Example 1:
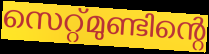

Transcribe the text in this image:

സെറ്റ്മുണ്ടിന്റെ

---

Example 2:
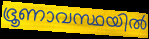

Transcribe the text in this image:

ഭ്രൂണാവസ്ഥയിൽ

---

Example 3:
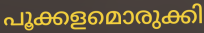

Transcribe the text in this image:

പൂക്കളമൊരുക്കി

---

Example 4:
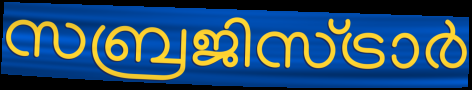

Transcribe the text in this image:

സബ്രജിസ്ട്രാർ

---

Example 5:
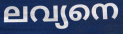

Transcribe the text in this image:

ലവ്യനെ